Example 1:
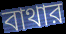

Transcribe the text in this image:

বাথার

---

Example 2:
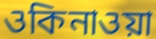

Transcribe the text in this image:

ওকিনাওয়া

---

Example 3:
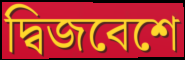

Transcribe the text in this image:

দ্বিজবেশে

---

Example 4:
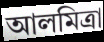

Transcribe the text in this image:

আলমিত্রা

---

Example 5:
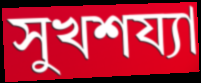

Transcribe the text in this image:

সুখশয্যা